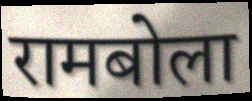
रामबोला